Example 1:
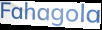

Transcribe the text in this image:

Fahagola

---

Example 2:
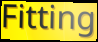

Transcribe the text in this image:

Fitting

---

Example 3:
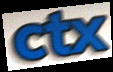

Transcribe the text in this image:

ctx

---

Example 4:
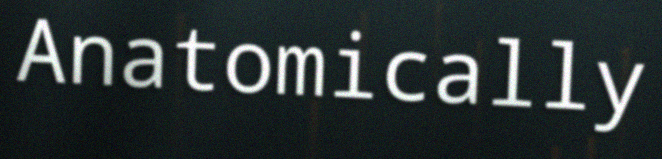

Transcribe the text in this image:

Anatomically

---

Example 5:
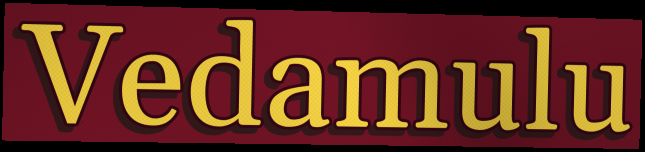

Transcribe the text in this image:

Vedamulu